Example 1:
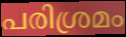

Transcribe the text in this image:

പരിശ്രമം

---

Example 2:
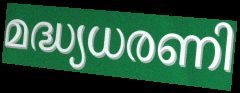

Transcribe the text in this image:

മദ്ധ്യധരണി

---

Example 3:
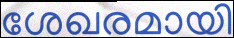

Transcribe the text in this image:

ശേഖരമായി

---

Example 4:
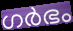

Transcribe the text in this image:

ഗർഭം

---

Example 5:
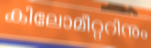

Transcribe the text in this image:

കിലോമീറ്ററിനും